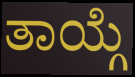
ತಾಯ್ಗೆ